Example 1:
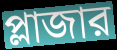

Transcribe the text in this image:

প্লাজার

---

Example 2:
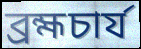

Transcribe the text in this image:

ব্রহ্মচার্য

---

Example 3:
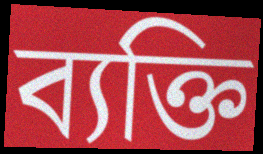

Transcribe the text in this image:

ব্যক্তি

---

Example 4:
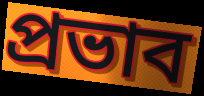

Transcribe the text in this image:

প্রভাব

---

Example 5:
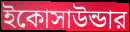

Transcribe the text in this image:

ইকোসাউন্ডার